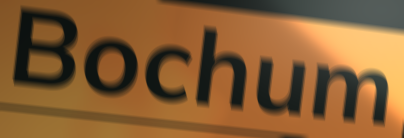
Bochum